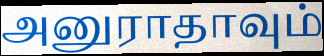
அனுராதாவும்